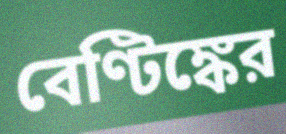
বেণ্টিঙ্কের